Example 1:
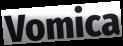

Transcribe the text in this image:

Vomica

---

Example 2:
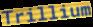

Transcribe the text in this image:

Trillium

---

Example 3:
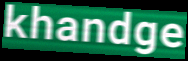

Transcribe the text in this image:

khandge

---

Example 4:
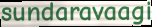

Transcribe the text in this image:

sundaravaagi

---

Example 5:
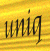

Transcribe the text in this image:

uniq